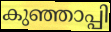
കുഞ്ഞാപ്പി